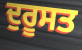
ਦੁਰੂਸਤ